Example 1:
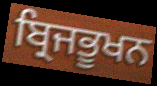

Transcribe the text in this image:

ਬ੍ਰਿਜਭੂਖਨ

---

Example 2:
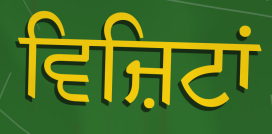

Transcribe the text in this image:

ਵਿਜ਼ਿਟਾਂ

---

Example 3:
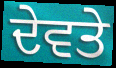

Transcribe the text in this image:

ਦੇਵਤੇ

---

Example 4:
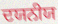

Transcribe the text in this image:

ਦਯਨੀਯ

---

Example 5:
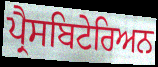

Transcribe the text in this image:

ਪ੍ਰੈਸਬਿਟੇਰਿਅਨ